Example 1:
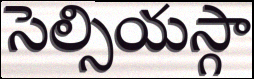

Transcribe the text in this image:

సెల్సియస్గా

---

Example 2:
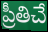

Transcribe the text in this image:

ప్రీతిచే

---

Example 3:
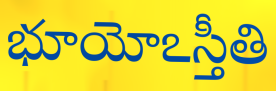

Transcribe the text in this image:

భూయోఽస్తీతి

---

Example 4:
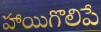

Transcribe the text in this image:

హాయిగొలిపే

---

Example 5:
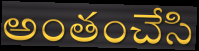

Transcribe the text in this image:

అంతంచేసి